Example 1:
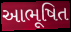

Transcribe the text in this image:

આભૂષિત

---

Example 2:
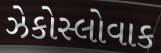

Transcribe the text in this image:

ઝેકોસ્લોવાક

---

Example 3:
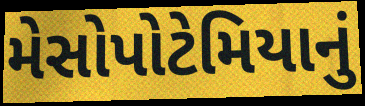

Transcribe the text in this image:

મેસોપોટેમિયાનું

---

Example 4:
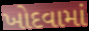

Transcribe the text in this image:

ખોદવામાં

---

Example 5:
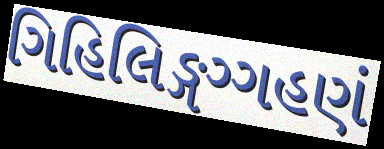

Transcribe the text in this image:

ગિહિલિઙ્ગગ્ગહણં